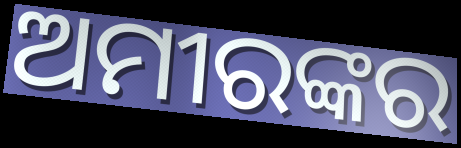
ଅମୀରଙ୍କର